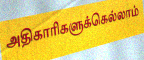
அதிகாரிகளுக்கெல்லாம்